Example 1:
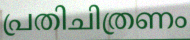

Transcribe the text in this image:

പ്രതിചിത്രണം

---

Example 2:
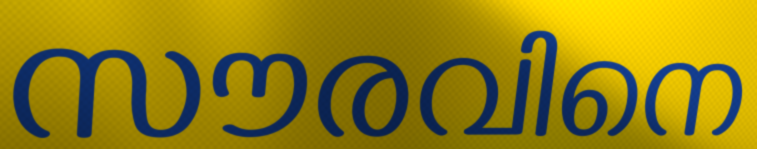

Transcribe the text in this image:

സൗരവിനെ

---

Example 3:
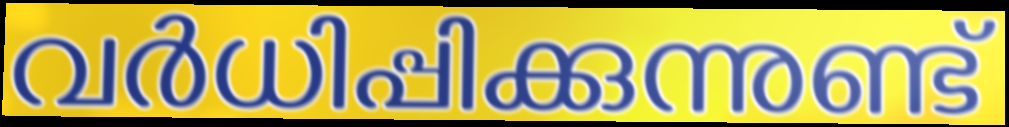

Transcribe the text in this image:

വർധിപ്പിക്കുന്നുണ്ട്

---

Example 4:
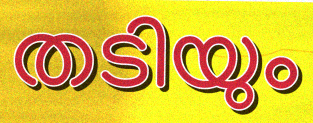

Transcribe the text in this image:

തടിയും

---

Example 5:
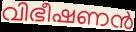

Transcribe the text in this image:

വിഭീഷണൻ